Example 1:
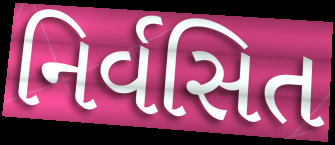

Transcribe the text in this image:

નિર્વસિત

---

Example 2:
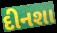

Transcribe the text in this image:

દીનશા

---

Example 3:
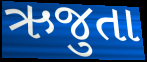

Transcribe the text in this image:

ઋજુતા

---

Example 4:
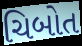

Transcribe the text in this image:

ચિબોત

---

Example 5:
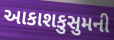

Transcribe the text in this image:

આકાશકુસુમની